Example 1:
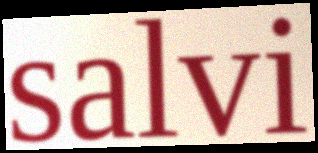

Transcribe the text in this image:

salvi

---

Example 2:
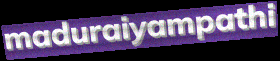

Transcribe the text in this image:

maduraiyampathi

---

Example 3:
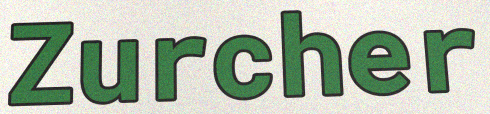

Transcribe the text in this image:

Zurcher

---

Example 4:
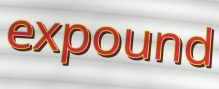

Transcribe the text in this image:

expound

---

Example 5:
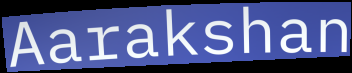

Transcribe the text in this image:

Aarakshan